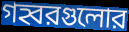
গহ্বরগুলোর